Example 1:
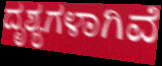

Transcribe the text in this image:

ದೃಶ್ಯಗಳಾಗಿವೆ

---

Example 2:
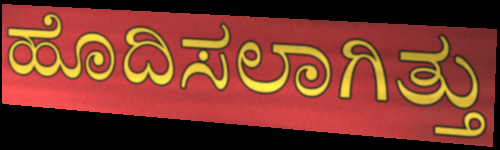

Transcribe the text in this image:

ಹೊದಿಸಲಾಗಿತ್ತು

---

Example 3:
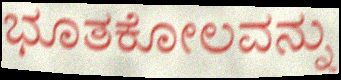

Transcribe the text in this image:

ಭೂತಕೋಲವನ್ನು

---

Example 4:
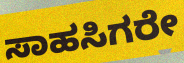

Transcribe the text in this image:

ಸಾಹಸಿಗರೇ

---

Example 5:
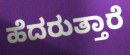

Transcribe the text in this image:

ಹೆದರುತ್ತಾರೆ